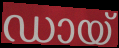
ഡായ്